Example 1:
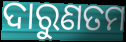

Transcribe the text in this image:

ଦାରୁଣତମ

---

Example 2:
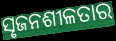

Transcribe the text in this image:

ସୃଜନଶୀଳତାର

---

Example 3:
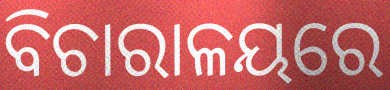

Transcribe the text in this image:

ବିଚାରାଳୟରେ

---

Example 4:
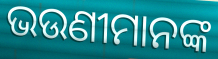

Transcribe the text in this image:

ଭଉଣୀମାନଙ୍କ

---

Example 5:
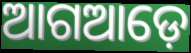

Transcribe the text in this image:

ଆଗଆଡ଼େ